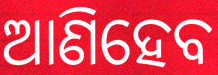
ଆଣିହେବ